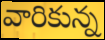
వారికున్న